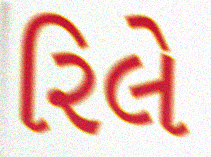
રિલે